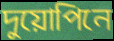
দুয়োপিনে